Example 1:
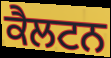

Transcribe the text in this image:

ਕੈਲਟਨ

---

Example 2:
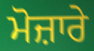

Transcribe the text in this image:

ਮੋਜ਼ਾਰੇ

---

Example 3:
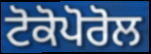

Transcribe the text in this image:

ਟੋਕੋਪੋਰੋਲ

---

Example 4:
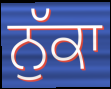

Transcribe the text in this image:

ਨੁੱਕਾ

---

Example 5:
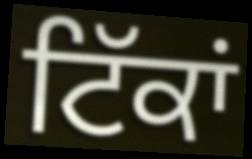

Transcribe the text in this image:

ਟਿੱਕਾਂ